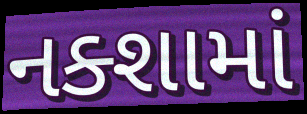
નક્શામાં